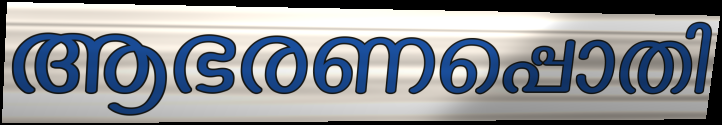
ആഭരണപ്പൊതി